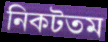
নিকটতম